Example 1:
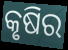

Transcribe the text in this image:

କୃଷିର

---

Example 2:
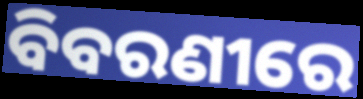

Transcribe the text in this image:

ବିବରଣୀରେ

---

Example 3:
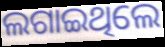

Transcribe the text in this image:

ଲଗାଇଥିଲେ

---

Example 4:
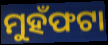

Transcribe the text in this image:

ମୁହଁଫଟା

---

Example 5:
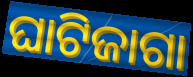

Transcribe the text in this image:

ଘାଟିଜାଗା